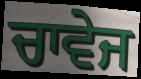
ਚਾਵੇਜ